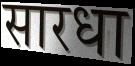
सारधा